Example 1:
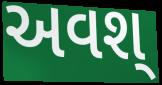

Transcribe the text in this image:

અવશ્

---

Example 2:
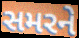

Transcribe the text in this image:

સમરને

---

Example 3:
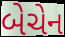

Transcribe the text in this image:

બેચેન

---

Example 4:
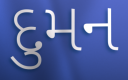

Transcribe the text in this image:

દુમન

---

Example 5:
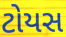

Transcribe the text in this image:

ટોયસ